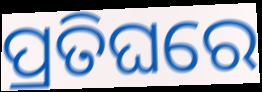
ପ୍ରତିଘରେ